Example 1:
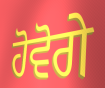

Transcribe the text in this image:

ਹੋਵੋਗੇ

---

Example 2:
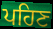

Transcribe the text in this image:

ਪਹਿਣ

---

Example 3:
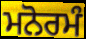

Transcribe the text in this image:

ਮਨੋਰਮੰ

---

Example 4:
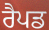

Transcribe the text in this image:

ਰੈਪਡ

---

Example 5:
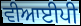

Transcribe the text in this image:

ਵੀਆਈਪੀ